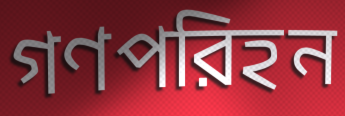
গণপরিহন